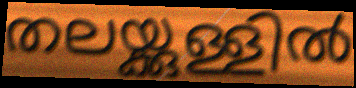
തലയ്ക്കുള്ളിൽ